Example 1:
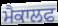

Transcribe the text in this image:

ਮੈਕਾਲਫ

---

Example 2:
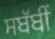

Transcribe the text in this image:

ਸਬੱਬੀਂ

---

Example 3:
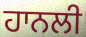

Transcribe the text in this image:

ਹਾਨਲੀ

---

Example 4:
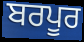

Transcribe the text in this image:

ਬਰਪੂਰ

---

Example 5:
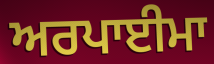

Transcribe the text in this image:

ਅਰਪਾਈਮਾ